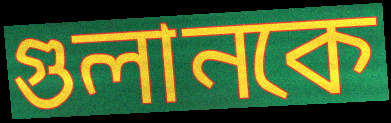
গুলানকে